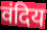
वंदिय